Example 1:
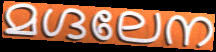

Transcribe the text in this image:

മഗ്ദലേന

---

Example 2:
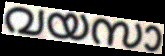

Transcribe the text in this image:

വയസാ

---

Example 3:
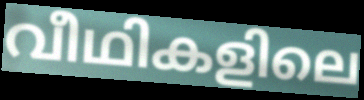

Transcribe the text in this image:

വീഥികളിലെ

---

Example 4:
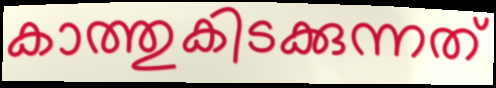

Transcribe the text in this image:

കാത്തുകിടക്കുന്നത്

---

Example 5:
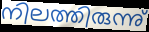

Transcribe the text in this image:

നിലത്തിരുന്നു്